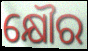
କ୍ଷୌର